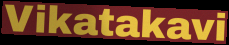
Vikatakavi